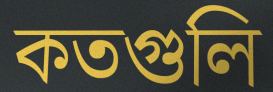
কতগুলি